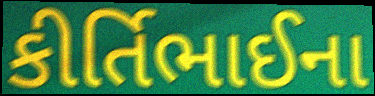
કીર્તિભાઈના